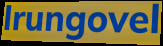
Irungovel